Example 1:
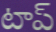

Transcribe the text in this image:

టాప్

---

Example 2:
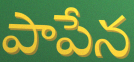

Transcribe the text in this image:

పాపేన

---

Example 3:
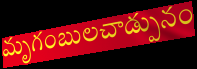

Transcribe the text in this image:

మృగంబులచాడ్పునం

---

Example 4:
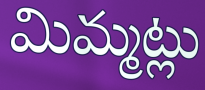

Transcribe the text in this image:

మిమ్మట్లు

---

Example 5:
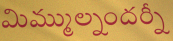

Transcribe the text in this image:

మిమ్ముల్నందర్నీ